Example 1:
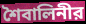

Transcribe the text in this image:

শৈবালিনীর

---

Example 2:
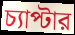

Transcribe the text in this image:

চ্যাপ্টার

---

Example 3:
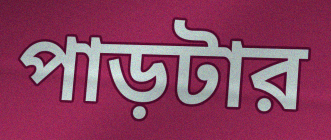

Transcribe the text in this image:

পাড়টার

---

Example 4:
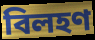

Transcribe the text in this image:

বিলহণ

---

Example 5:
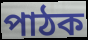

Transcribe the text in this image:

পাঠক